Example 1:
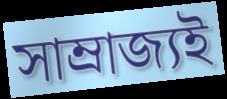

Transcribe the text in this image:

সাম্ৰাজ্যই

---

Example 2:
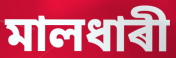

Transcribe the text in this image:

মালধাৰী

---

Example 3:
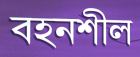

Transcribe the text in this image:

বহনশীল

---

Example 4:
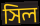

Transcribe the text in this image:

সিল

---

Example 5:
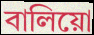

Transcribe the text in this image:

বালিয়ো